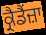
ਕ੍ਰੈਡੈਂਜ਼ਾ